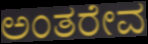
ಅಂತರೇವ